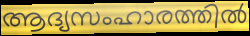
ആദ്യസംഹാരത്തിൽ